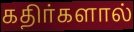
கதிர்களால்